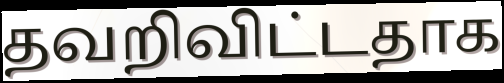
தவறிவிட்டதாக